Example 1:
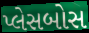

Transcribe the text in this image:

પ્લેસબોસ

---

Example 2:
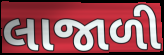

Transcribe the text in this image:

લાજાળી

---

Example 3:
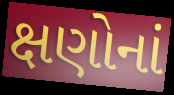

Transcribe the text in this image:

ક્ષણોનાં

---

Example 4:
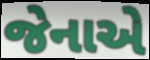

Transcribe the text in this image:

જેનાએ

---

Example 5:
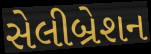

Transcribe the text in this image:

સેલીબ્રેશન